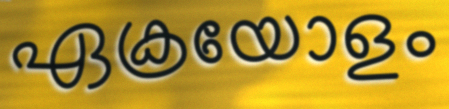
ഏക്രയോളം